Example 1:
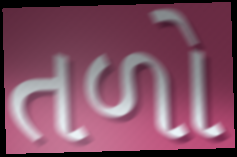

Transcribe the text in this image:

તળો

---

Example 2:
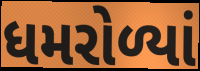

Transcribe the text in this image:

ધમરોળ્યાં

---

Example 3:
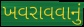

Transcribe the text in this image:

ખવરાવવાનું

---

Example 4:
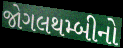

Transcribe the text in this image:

જોગલથમ્બીનો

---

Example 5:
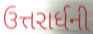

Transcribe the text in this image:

ઉત્તરાર્ધની